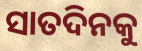
ସାତଦିନକୁ